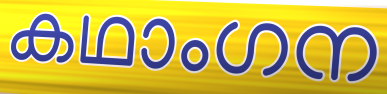
കഥാംഗന